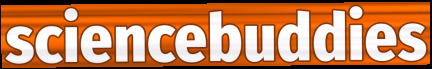
sciencebuddies